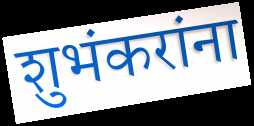
शुभंकरांना